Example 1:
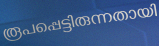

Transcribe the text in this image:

രൂപപ്പെട്ടിരുന്നതായി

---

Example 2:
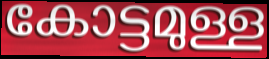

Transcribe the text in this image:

കോട്ടമുള്ള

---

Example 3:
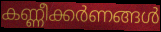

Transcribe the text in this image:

കണ്ണീക്കർണങ്ങൾ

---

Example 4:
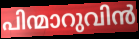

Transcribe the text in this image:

പിന്മാറുവിൻ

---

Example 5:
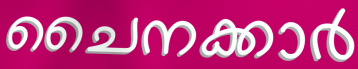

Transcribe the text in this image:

ചൈനക്കാർ